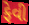
ફેવી